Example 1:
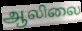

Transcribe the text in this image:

ஆலிலை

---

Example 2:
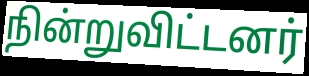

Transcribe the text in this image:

நின்றுவிட்டனர்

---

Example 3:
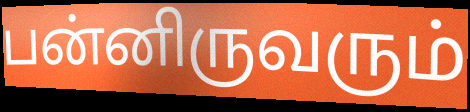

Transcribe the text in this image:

பன்னிருவரும்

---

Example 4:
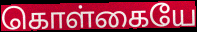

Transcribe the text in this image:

கொள்கையே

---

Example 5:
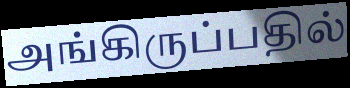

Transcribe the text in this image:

அங்கிருப்பதில்